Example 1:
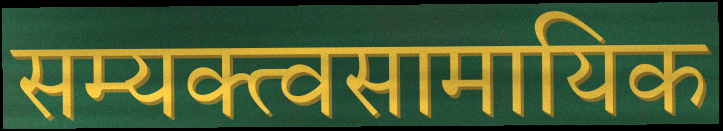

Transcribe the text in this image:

सम्यक्त्वसामायिक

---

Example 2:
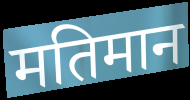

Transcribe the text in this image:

मतिमान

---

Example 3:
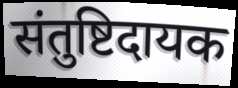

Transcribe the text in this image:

संतुष्टिदायक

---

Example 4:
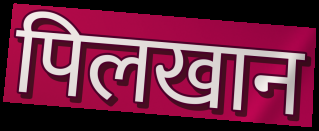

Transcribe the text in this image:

पिलखान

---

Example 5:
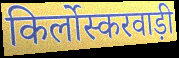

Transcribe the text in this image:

किर्लोस्करवाड़ी